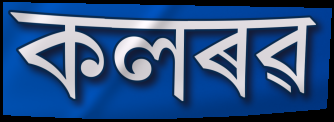
কলৰৱ